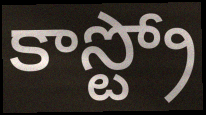
కాస్ట్రో